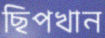
ছিপখান